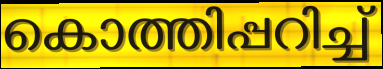
കൊത്തിപ്പറിച്ച്